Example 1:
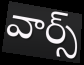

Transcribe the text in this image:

వార్స్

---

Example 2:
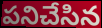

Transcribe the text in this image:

పనిచేసిన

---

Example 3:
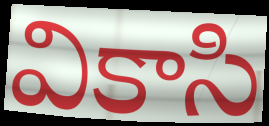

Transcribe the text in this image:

వికాసి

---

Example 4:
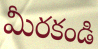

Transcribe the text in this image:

మీరకండి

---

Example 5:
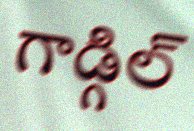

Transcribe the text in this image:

గాడ్గిల్